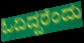
ಓದಿದ್ದರೆಂದು